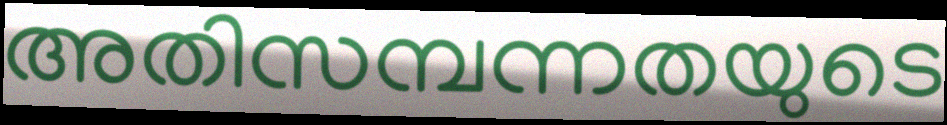
അതിസമ്പന്നതയുടെ